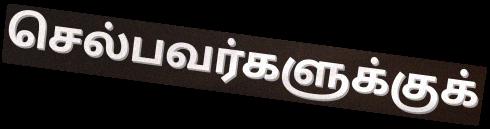
செல்பவர்களுக்குக்